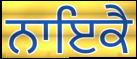
ਨਾਇਕੈ